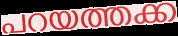
പറയത്തക്ക